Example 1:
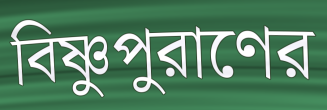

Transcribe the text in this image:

বিষ্ণুপুরাণের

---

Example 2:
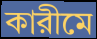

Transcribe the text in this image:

কারীমে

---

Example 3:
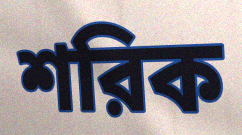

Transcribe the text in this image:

শরিক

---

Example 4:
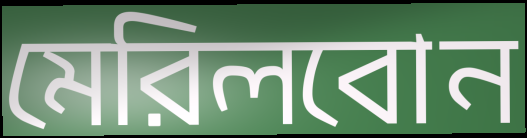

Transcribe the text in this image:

মেরিলবোন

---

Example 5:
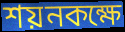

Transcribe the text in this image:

শয়নকক্ষে